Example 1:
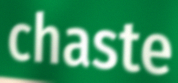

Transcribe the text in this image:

chaste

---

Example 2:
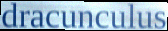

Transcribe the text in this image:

dracunculus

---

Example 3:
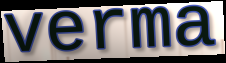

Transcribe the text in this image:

verma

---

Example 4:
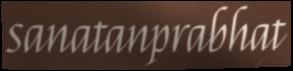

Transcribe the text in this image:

sanatanprabhat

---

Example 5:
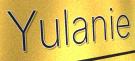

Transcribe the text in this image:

Yulanie